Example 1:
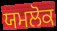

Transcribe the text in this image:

ਯਮਲੋਕ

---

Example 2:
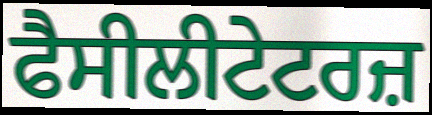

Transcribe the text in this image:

ਫੈਸੀਲੀਟੇਟਰਜ਼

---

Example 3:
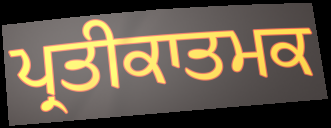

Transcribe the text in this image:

ਪ੍ਰਤੀਕਾਤਮਕ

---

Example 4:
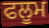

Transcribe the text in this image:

ਫਲੂਮ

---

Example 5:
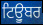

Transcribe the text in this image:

ਟਿਊੁਬਰ